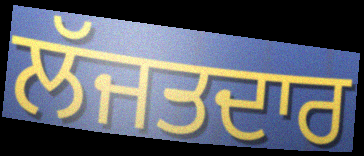
ਲੱਜਤਦਾਰ